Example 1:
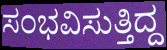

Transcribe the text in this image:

ಸಂಭವಿಸುತ್ತಿದ್ದ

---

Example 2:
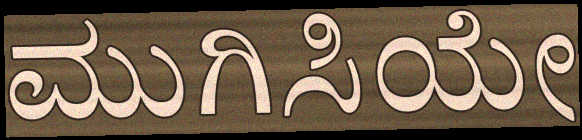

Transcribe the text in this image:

ಮುಗಿಸಿಯೇ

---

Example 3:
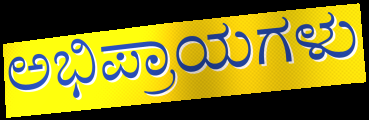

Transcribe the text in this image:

ಅಭಿಪ್ರಾಯಗಳು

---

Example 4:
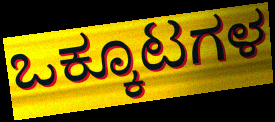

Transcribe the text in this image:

ಒಕ್ಕೂಟಗಳ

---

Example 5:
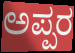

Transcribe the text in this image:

ಅಪ್ಪರ